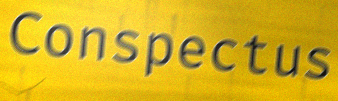
Conspectus